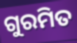
ଗୁରମିତ